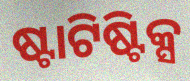
ଷ୍ଟାଟିଷ୍ଟିକ୍ସ